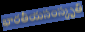
భారతీయసంస్కృతి